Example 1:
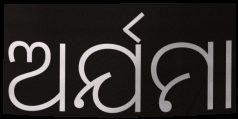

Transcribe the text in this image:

ଅର୍ଯମା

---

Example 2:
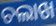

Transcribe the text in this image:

ଚଲାଖ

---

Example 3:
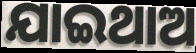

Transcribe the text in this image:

ଯାଇଥାଅ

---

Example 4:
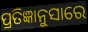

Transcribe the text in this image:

ପ୍ରତିଜ୍ଞାନୁସାରେ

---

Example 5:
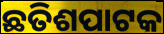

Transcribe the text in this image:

ଛତିଶପାଟକ